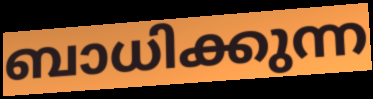
ബാധിക്കുന്ന